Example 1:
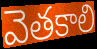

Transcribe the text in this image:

వెతకాలి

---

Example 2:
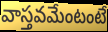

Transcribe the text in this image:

వాస్తవమేంటంటే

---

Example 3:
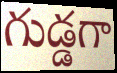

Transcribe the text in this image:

గుడ్డగా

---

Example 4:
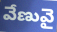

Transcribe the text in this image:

వేణువై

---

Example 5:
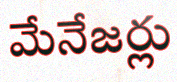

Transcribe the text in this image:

మేనేజర్లు